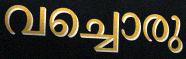
വച്ചൊരു